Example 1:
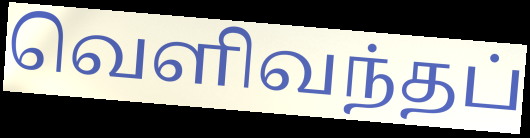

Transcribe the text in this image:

வெளிவந்தப்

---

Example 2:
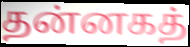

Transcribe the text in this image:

தன்னகத்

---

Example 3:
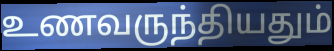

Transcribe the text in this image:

உணவருந்தியதும்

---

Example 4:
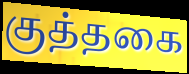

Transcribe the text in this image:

குத்தகை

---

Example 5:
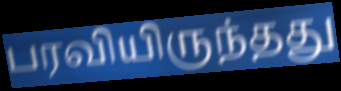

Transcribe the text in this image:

பரவியிருந்தது